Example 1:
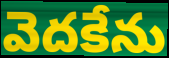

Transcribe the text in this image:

వెదకేను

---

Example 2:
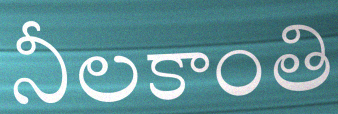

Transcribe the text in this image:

నీలకాంతి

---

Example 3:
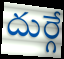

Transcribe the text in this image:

దుర్గే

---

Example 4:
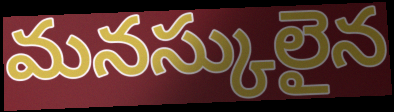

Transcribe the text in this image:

మనస్కులైన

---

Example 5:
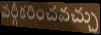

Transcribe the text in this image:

వర్గీకరించవచ్చు